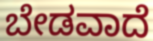
ಬೇಡವಾದೆ